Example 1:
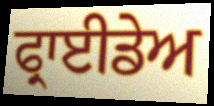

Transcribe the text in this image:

ਫ੍ਰਾਈਡੇਅ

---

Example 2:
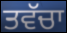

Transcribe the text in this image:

ਤਵੱਚਾ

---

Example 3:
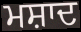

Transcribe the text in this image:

ਮਸ਼ਾਦ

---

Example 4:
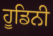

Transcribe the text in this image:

ਹੂਡਿਨੀ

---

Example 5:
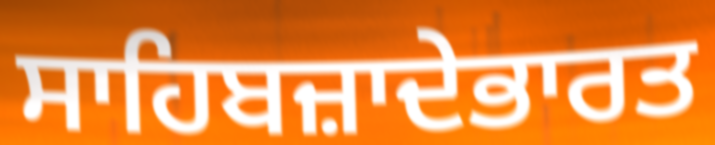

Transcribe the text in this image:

ਸਾਹਿਬਜ਼ਾਦੇਭਾਰਤ